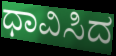
ಧಾವಿಸಿದ